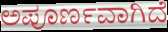
ಅಪೂರ್ಣವಾಗಿದೆ